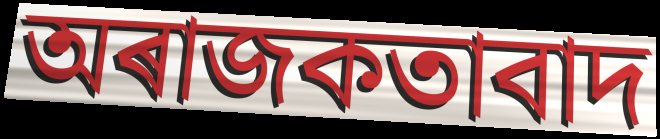
অৰাজকতাবাদ